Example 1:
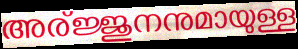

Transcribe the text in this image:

അര്ജ്ജുനനുമായുള്ള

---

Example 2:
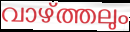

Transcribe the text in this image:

വാഴ്ത്തലും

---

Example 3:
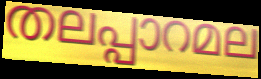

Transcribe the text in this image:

തലപ്പാറമല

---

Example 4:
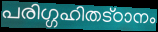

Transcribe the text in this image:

പരിഗ്ഗഹിതട്ഠാനം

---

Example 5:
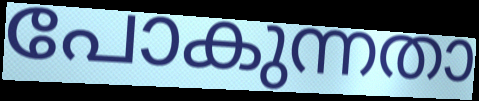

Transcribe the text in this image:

പോകുന്നതാ